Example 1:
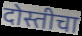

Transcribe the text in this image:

दोस्तीचा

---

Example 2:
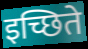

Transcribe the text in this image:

इच्छिते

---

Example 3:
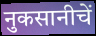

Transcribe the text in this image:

नुकसानीचें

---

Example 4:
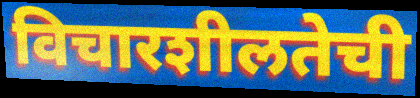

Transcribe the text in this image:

विचारशीलतेची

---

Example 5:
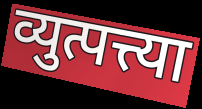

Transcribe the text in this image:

व्युत्पत्त्या